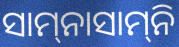
ସାମ୍‍ନାସାମ୍‍ନି